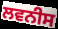
ਲਵਨੀਸ